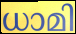
ധാമി